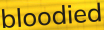
bloodied